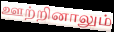
ஊற்றினாலும்